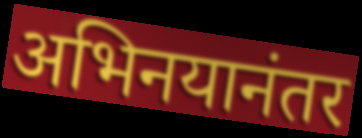
अभिनयानंतर